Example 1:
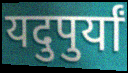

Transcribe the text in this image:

यदुपुर्यां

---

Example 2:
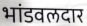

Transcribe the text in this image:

भांडवलदार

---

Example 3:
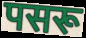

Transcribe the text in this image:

पसरू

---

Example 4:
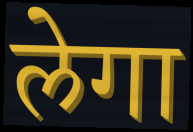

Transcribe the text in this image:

लेगा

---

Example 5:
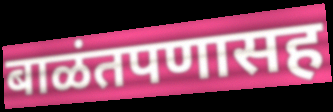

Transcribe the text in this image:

बाळंतपणासह